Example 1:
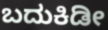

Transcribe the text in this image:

ಬದುಕಿಡೀ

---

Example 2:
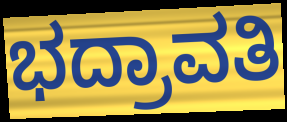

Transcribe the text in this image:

ಭದ್ರಾವತಿ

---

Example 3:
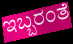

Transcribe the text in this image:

ಇಬ್ಬರಂತೆ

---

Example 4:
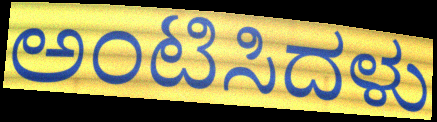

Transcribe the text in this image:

ಅಂಟಿಸಿದಳು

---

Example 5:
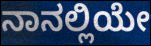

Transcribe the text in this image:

ನಾನಲ್ಲಿಯೇ